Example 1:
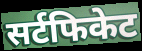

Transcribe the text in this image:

सर्टफिकेट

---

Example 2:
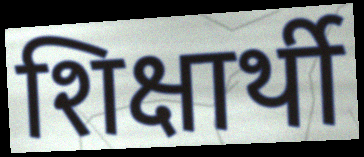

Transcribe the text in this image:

शिक्षार्थी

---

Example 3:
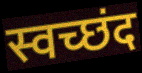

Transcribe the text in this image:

स्वच्छंद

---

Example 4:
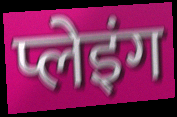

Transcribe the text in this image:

प्लेइंग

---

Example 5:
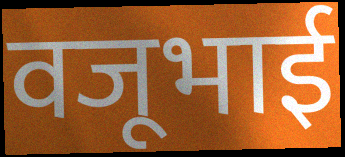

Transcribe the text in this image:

वजूभाई